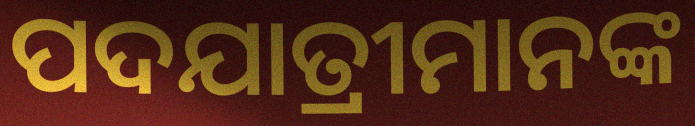
ପଦଯାତ୍ରୀମାନଙ୍କ